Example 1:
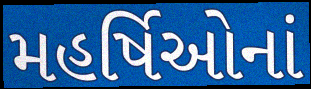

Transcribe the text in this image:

મહર્ષિઓનાં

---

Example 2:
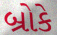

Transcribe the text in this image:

બ્રોકે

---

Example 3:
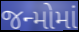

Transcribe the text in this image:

જન્મોમાં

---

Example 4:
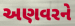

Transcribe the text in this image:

અણવરને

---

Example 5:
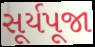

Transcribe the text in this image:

સૂર્યપૂજા